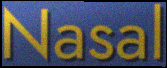
Nasal